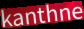
kanthne